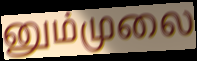
னும்முலை